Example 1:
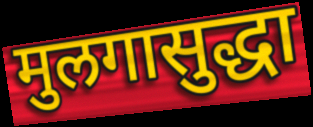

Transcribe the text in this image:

मुलगासुद्धा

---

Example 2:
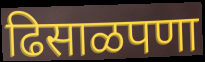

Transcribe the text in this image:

ढिसाळपणा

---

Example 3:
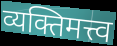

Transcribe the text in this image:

व्यक्तिमत्त्व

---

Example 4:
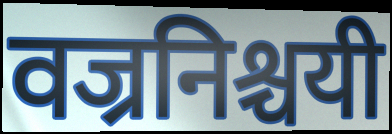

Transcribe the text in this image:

वज्रनिश्चयी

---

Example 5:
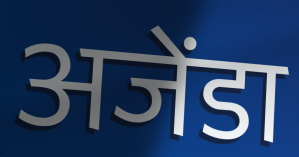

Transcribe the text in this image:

अजेंडा